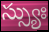
స్స్యుః